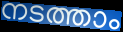
നടത്താം